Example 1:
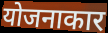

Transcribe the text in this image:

योजनाकार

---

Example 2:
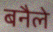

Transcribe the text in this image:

बनैले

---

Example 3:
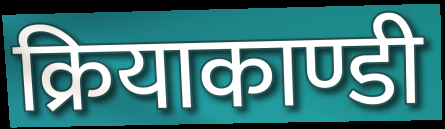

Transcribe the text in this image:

क्रियाकाण्डी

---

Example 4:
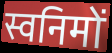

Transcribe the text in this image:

स्वनिमों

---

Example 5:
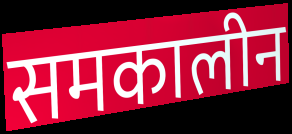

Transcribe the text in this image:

समकालीन